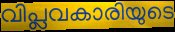
വിപ്ലവകാരിയുടെ